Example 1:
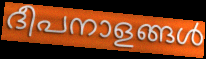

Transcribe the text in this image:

ദീപനാളങ്ങൾ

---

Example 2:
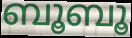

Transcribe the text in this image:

ബൂബൂ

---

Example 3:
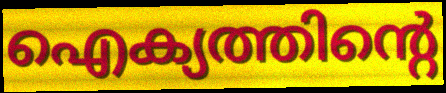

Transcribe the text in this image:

ഐക്യത്തിന്റെ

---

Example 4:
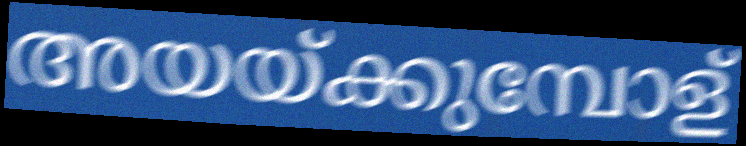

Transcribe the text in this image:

അയയ്ക്കുമ്പോള്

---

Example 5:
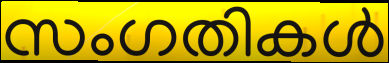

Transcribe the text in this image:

സംഗതികൾ